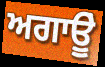
ਅਗਾਊੂਂ